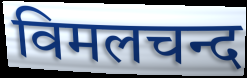
विमलचन्द